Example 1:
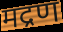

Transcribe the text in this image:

मद्रण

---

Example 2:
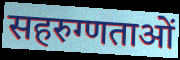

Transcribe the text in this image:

सहरुग्णताओं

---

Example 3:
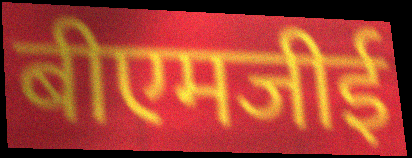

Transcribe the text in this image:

बीएमजीई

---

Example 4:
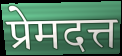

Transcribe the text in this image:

प्रेमदत्त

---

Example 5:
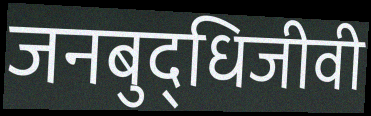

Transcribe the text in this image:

जनबुद्धिजीवी